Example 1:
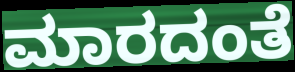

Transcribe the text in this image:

ಮಾರದಂತೆ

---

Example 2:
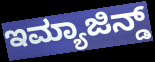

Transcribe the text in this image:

ಇಮ್ಯಾಜಿನ್ಡ್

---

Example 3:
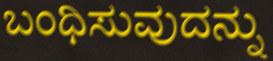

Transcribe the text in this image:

ಬಂಧಿಸುವುದನ್ನು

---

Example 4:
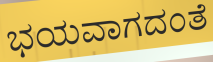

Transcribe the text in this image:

ಭಯವಾಗದಂತೆ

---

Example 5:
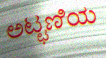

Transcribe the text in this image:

ಅಟ್ಟಣಿಯ